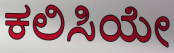
ಕಲಿಸಿಯೇ